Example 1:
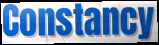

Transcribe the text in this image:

Constancy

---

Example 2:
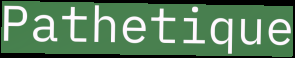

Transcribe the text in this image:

Pathetique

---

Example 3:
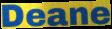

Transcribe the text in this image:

Deane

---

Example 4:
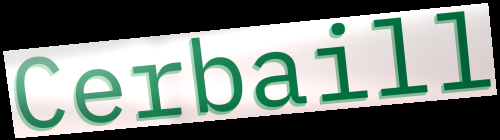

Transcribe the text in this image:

Cerbaill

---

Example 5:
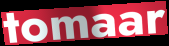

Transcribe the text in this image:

tomaar